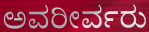
ಅವರೀರ್ವರು